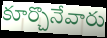
కూర్చొనేవారు